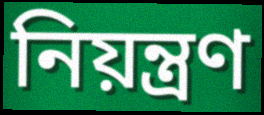
নিয়ন্ত্ৰণ